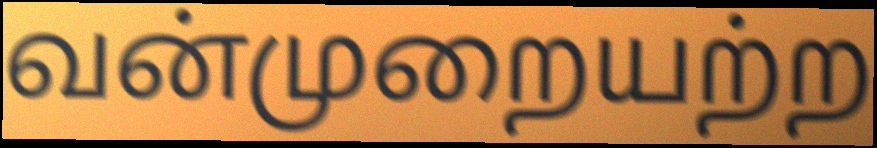
வன்முறையற்ற